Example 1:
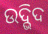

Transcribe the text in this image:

ଉଦ୍ଭିଦ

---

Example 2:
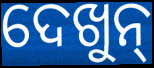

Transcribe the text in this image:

ଦେଖୁନ୍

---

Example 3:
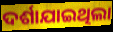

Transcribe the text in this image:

ଦର୍ଶାଯାଇଥିଲା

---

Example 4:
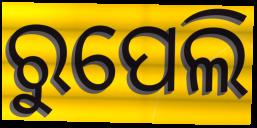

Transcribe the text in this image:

ରୁପେଲି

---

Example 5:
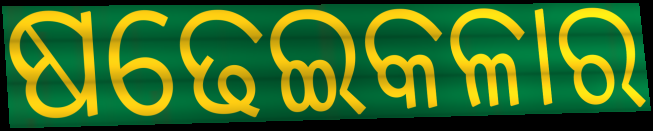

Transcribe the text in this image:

ଷଢେଇକଳାର